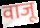
वाजू